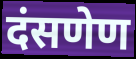
दंसणेण